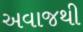
અવાજથી